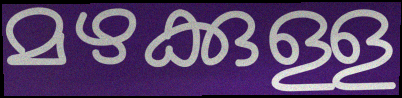
മഴക്കുള്ള